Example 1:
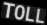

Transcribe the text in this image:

TOLL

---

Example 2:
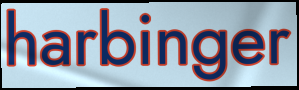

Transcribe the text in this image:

harbinger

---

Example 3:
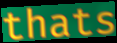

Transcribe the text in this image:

thats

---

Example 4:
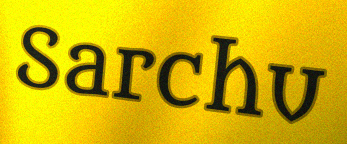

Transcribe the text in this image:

Sarchu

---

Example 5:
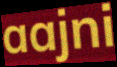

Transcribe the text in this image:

aajni